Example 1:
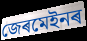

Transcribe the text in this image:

জেৰমেইনৰ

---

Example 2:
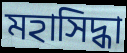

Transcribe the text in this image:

মহাসিদ্ধা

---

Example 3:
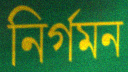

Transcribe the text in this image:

নিৰ্গমন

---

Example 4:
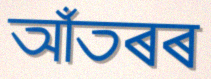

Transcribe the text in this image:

আঁতৰৰ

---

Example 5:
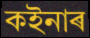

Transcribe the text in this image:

কইনাৰ